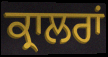
ਕ੍ਰਾਲਰਾਂ